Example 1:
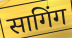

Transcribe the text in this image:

सागिंग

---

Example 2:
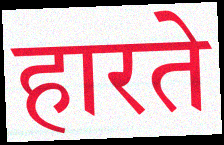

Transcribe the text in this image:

हारते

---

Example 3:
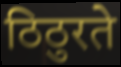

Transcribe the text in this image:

ठिठुरते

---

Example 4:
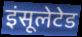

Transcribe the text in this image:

इंसूलेटेड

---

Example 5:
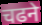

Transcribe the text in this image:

चढने